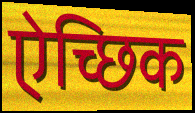
ऐच्छिक